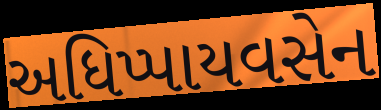
અધિપ્પાયવસેન